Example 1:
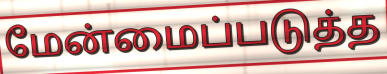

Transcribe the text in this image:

மேன்மைப்படுத்த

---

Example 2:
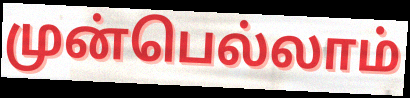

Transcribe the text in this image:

முன்பெல்லாம்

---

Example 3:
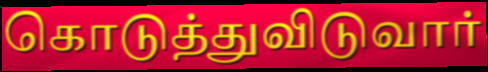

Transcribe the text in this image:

கொடுத்துவிடுவார்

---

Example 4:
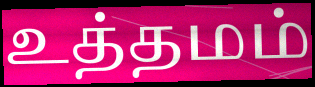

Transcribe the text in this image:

உத்தமம்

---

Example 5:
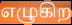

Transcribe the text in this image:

எழுகிற